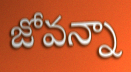
జోవన్నా